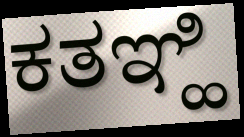
ಕತಞ್ಹಿ